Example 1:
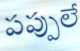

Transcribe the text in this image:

పప్పులే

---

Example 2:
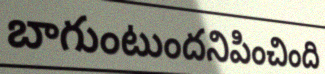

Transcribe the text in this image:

బాగుంటుందనిపించింది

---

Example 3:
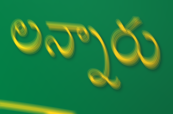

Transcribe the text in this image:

లన్నారు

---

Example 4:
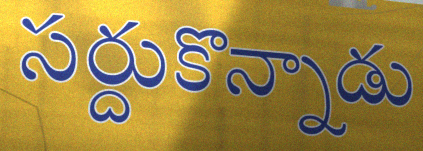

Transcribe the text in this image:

సర్దుకొన్నాడు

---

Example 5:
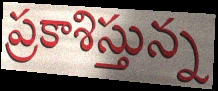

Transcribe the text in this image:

ప్రకాశిస్తున్న